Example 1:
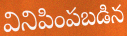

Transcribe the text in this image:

వినిపింపబడిన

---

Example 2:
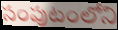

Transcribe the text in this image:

సంపుటంలోని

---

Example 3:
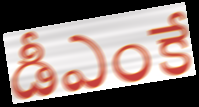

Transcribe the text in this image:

డీఎంకే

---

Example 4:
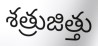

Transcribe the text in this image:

శత్రుజిత్తు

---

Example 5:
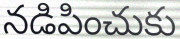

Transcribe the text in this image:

నడిపించుకు